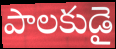
పాలకుడై